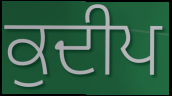
ਕੁਦੀਪ